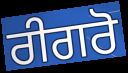
ਰੀਗਰੋ